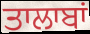
ਤਾਲਾਬਾਂ